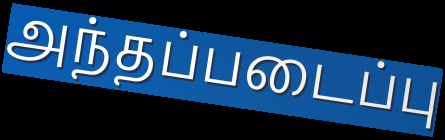
அந்தப்படைப்பு